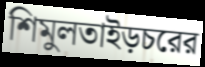
শিমুলতাইড়চরের